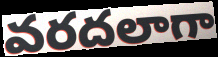
వరదలాగా